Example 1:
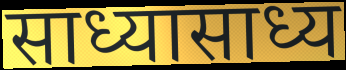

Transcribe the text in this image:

साध्यासाध्य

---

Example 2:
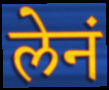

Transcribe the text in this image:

लेनं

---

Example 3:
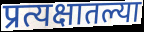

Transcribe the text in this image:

प्रत्यक्षातल्या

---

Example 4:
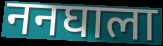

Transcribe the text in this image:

ननघाला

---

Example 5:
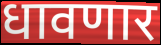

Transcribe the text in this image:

धावणार